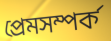
প্রেমসম্পর্ক